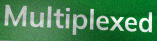
Multiplexed